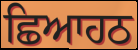
ਛਿਆਹਠ